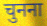
चुनना